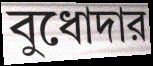
বুধোদার